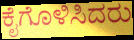
ಕೈಗೊಳಿಸಿದರು